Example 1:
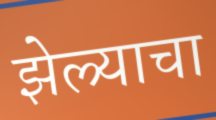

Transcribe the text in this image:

झेल्याचा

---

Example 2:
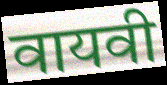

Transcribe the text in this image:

वायवी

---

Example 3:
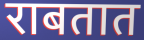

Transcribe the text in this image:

राबतात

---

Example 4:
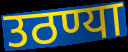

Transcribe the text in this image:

उठण्या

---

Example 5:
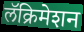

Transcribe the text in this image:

लॅक्रिमेशन